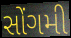
સોંગમી